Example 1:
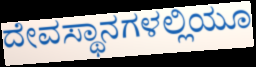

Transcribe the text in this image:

ದೇವಸ್ಥಾನಗಳಲ್ಲಿಯೂ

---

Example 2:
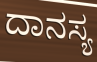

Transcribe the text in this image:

ದಾನಸ್ಯ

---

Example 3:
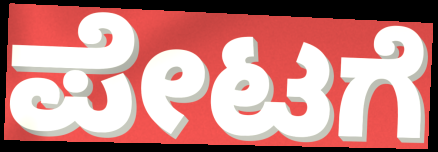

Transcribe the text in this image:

ಪೇಟಗೆ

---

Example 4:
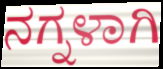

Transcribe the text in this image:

ನಗ್ನಳಾಗಿ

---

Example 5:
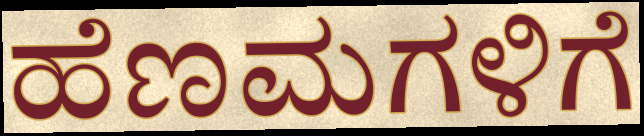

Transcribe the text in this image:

ಹೆಣಮಗಳಿಗೆ